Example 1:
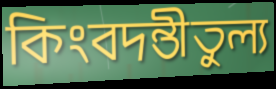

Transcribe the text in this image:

কিংবদন্তীতুল্য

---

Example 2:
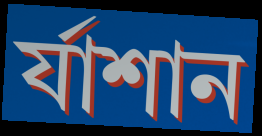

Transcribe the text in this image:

র্যাশান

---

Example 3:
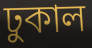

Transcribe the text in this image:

ঢুকাল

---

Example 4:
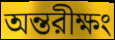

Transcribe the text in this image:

অন্তরীক্ষং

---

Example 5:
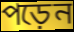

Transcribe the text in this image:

পড়েন